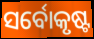
ସର୍ବୋକୃଷ୍ଟ